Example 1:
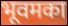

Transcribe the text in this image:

भूवमका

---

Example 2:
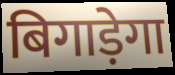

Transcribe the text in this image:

बिगाड़ेगा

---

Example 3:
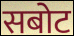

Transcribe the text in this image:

सबोट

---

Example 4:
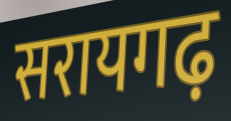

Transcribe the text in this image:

सरायगढ़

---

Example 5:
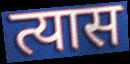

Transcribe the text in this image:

त्यास